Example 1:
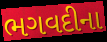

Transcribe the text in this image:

ભગવદીના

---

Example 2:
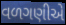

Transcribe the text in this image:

વળગણીએ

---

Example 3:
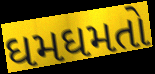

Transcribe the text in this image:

ઘમઘમતો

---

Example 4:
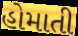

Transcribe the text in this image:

હોમાતી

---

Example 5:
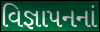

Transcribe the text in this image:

વિજ્ઞાપનનાં